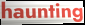
haunting